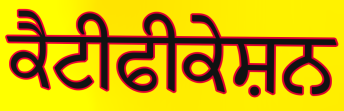
ਕੈਟੀਫੀਕੇਸ਼ਨ